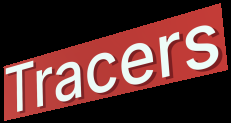
Tracers